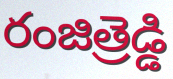
రంజిత్రెడ్డి